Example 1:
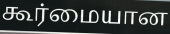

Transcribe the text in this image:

கூர்மையான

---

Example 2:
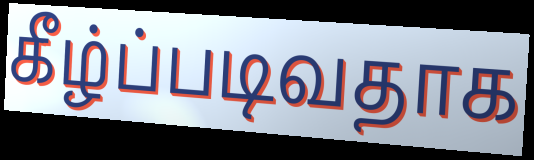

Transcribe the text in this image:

கீழ்ப்படிவதாக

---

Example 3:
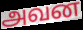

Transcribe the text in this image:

அவன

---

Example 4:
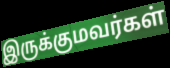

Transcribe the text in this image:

இருக்குமவர்கள்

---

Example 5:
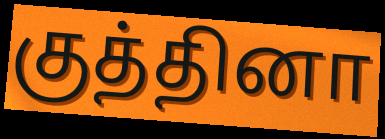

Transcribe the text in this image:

குத்தினா